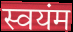
स्वयंम